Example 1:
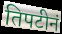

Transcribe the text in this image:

तिपटीनं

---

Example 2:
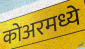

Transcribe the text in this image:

कोअरमध्ये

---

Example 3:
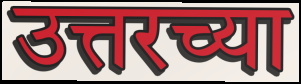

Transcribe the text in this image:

उत्तरच्या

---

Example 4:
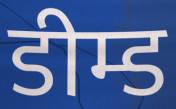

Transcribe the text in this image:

डीम्ड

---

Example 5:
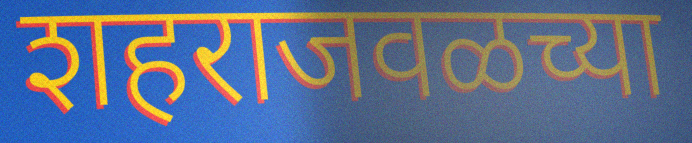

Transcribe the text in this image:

शहराजवळच्या